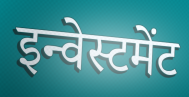
इन्वेस्टमेंट